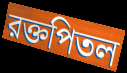
রক্তপিতল